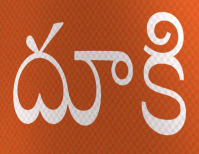
దూకి